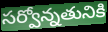
సర్వోన్నతునికి